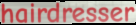
hairdresser